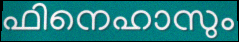
ഫിനെഹാസും